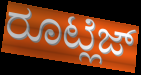
ರೂಟ್ಲೆಜ್